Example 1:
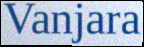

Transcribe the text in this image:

Vanjara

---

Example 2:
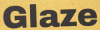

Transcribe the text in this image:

Glaze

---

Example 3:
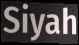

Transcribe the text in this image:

Siyah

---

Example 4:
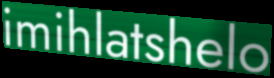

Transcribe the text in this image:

imihlatshelo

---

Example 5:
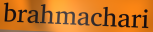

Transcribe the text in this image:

brahmachari